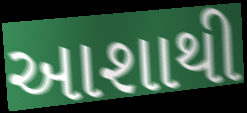
આશાથી